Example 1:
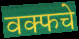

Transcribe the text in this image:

वक्फचे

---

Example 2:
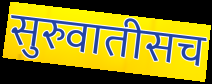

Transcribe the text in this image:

सुरुवातीसच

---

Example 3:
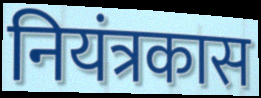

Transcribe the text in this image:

नियंत्रकास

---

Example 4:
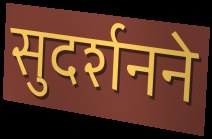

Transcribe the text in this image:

सुदर्शनने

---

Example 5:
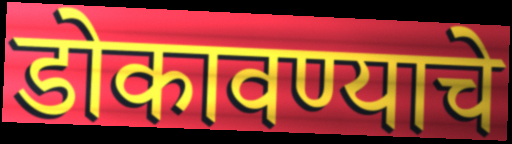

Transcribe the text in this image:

डोकावण्याचे